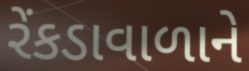
રેંકડાવાળાને